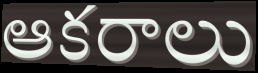
ఆకరాలు